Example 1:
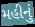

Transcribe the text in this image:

મહીનું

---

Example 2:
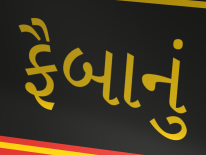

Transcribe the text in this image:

ફૈબાનું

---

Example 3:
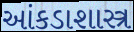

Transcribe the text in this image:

આંકડાશાસ્ત્ર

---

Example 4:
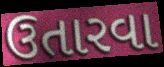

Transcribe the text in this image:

ઉતારવા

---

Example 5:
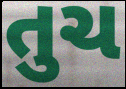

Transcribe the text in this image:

તુચ